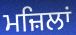
ਮਜ਼ਿਲਾਂ